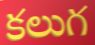
కలుగ